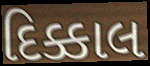
દિક્કાલ